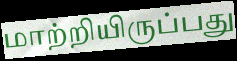
மாற்றியிருப்பது